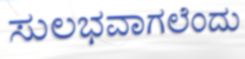
ಸುಲಭವಾಗಲೆಂದು